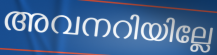
അവനറിയില്ലേ